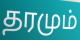
தரமும்